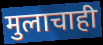
मुलाचाही